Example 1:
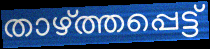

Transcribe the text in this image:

താഴ്ത്തപ്പെട്ട്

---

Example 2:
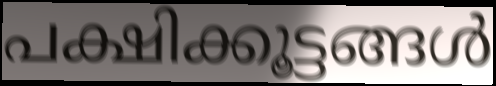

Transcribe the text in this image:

പക്ഷിക്കൂട്ടങ്ങൾ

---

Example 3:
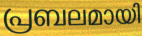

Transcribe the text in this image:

പ്രബലമായി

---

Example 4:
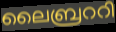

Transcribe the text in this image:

ലൈബ്രററി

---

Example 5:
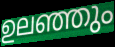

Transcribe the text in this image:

ഉലഞ്ഞും